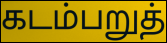
கடம்பறுத்